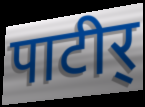
पाटीर्